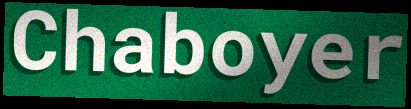
Chaboyer